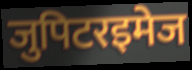
जुपिटरइमेज